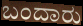
ಬಂದಾರು